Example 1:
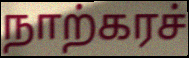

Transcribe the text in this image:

நாற்கரச்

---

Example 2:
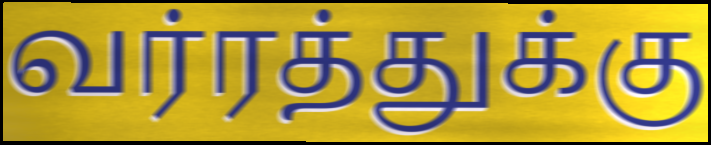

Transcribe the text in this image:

வர்ரத்துக்கு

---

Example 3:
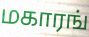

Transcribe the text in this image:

மகாரங்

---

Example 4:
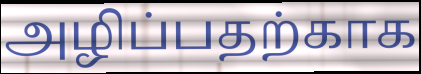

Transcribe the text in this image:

அழிப்பதற்காக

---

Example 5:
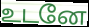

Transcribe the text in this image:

உடனே